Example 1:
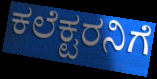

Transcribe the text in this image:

ಕಲೆಕ್ಟರನಿಗೆ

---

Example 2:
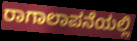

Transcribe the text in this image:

ರಾಗಾಲಾಪನೆಯಲ್ಲಿ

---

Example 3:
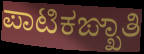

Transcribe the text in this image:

ಪಾಟಿಕಙ್ಖಾತಿ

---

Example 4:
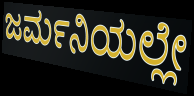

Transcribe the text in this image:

ಜರ್ಮನಿಯಲ್ಲೇ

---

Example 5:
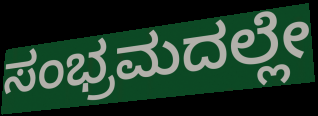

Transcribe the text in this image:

ಸಂಭ್ರಮದಲ್ಲೇ